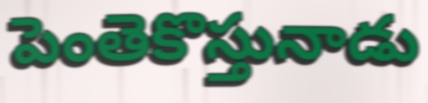
పెంతెకొస్తునాడు